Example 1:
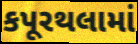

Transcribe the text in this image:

કપૂરથલામાં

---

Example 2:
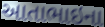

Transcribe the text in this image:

આતાભાઇના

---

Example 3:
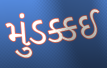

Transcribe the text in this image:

મુંડક્કઈ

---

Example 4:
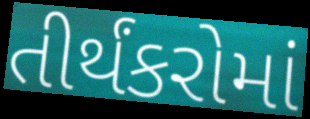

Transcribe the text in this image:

તીર્થંકરોમાં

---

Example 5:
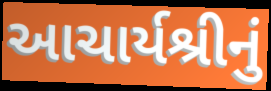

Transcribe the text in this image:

આચાર્યશ્રીનું